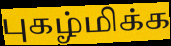
புகழ்மிக்க